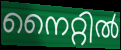
നൈറ്റിൽ